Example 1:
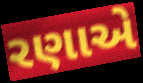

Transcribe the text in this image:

રણાએ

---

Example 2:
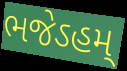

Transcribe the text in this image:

ભજેઽહમ્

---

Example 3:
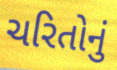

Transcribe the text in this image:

ચરિતોનું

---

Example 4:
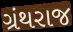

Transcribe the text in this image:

ગ્રંથરાજ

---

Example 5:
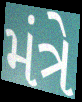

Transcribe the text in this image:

મંત્રે